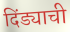
दिंड्याची